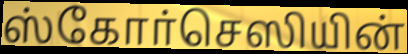
ஸ்கோர்செஸியின்